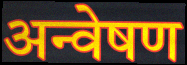
अन्वेषण